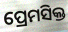
ପ୍ରେମସିକ୍ତ